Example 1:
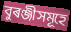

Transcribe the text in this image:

বুৰঞ্জীসমূহে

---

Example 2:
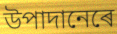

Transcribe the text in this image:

উপাদানেৰে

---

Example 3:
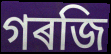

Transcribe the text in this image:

গৰজি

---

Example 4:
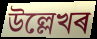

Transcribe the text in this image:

উল্লেখৰ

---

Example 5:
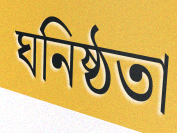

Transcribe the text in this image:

ঘনিষ্ঠতা